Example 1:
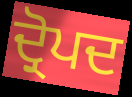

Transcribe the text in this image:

ਦ੍ਰੋਪਦ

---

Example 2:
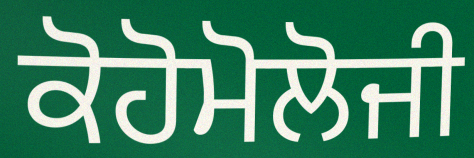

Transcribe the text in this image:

ਕੋਹੋਮੋਲੋਜੀ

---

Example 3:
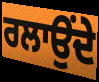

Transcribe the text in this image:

ਰਲਾਉਂਦੇ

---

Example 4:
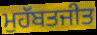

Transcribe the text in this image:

ਮੁਹੱਬਤਜੀਤ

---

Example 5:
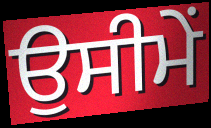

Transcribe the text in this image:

ਉਸੀਮੇਂ